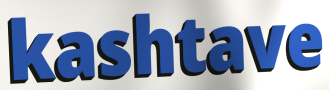
kashtave